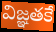
విజ్ఞతకే